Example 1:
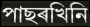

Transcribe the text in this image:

পাছৰখিনি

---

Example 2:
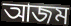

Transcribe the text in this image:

আজম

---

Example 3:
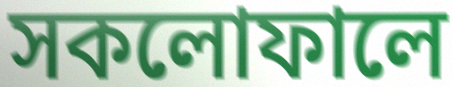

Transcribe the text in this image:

সকলোফালে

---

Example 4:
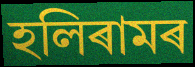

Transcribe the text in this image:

হলিৰামৰ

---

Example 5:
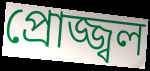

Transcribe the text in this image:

প্ৰোজ্জ্বল